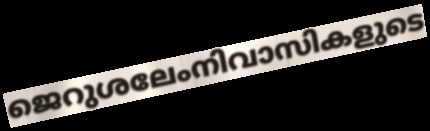
ജെറുശലേംനിവാസികളുടെ